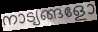
നാട്യങ്ങളോ